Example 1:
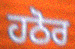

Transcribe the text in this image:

ਹਠੋਰ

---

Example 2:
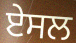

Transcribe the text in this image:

ਏਸਲ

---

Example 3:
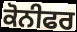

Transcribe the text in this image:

ਕੋਨੀਫਰ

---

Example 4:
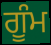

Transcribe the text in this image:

ਗੂੰਮ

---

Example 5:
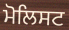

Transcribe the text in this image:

ਮੋਲਿਸਟ